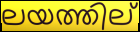
ലയത്തില്